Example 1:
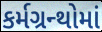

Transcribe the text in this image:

કર્મગ્રન્થોમાં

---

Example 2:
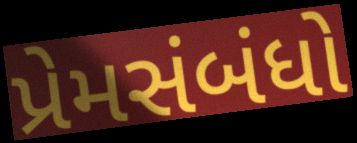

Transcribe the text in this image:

પ્રેમસંબંધો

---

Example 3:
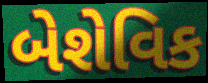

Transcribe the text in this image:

બેશેવિક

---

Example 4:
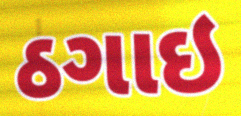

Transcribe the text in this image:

ઠગાઇ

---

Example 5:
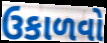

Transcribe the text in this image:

ઉકાળવો